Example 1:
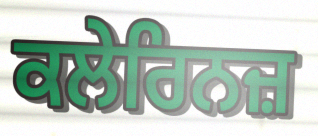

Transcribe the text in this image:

ਕਲੇਰਿਨਜ਼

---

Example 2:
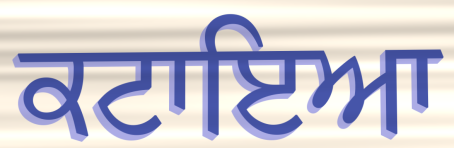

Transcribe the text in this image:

ਕਟਾਇਆ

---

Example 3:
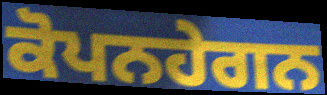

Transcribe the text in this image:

ਕੋਪਨਹੇਗਨ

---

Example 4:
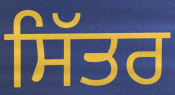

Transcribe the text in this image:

ਸਿੱਤਰ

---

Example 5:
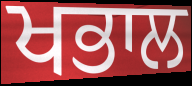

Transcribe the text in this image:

ਖਭਾਲ